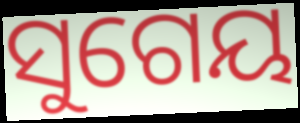
ସୁଗେୟ